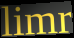
limr